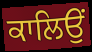
ਕਾਲਿਉਂ